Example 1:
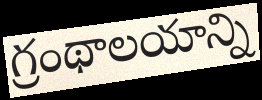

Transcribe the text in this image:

గ్రంథాలయాన్ని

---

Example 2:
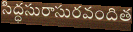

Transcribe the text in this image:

సిద్ధసురాసురవందిత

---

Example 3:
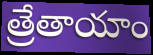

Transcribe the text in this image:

త్రేతాయాం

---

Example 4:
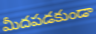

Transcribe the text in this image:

మీదపడకుండా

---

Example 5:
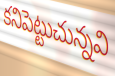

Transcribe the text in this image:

కనిపెట్టుచున్నవి